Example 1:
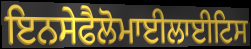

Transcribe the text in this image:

ਇਨਸੇਫੈਲੋਮਾਈਲਾਈਟਿਸ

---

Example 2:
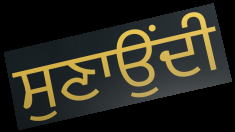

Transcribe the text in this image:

ਸੁਣਾਉਂਦੀ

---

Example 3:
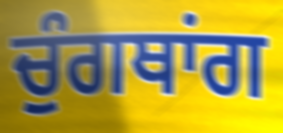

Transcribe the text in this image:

ਚੁੰਗਥਾਂਗ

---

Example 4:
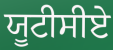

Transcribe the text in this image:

ਯੂਟੀਸੀਏ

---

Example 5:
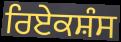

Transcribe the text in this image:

ਰਿਏਕਸ਼ੰਸ